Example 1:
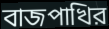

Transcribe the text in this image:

বাজপাখির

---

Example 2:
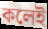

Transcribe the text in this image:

কলেই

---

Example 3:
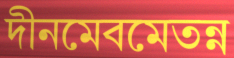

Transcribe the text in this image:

দীনমেবমেতন্ন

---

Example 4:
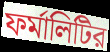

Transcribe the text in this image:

ফর্মালিটির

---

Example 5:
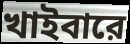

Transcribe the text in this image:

খাইবারে